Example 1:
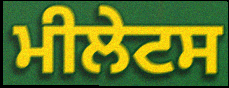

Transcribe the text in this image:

ਮੀਲੇਟਸ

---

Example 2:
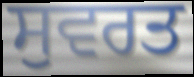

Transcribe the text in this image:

ਸੁਵਰਤ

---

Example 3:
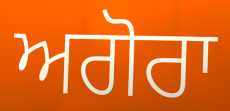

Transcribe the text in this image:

ਅਗੋਰਾ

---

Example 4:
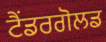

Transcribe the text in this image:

ਟੈਂਡਰਗੋਲਡ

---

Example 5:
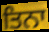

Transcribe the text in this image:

ਤਿਨਾ